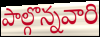
పాల్గొన్నవారి